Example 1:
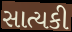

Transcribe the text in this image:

સાત્યકી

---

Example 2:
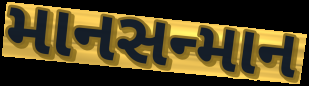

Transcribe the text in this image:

માનસન્માન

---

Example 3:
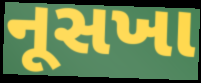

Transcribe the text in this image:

નૂસખા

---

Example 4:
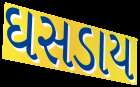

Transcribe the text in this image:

ઘસડાય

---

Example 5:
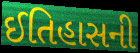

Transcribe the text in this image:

ઈતિહાસની